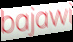
bajawi